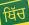
ਥਿੱਚ